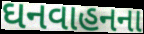
ઘનવાહનના